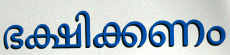
ഭക്ഷിക്കണം